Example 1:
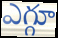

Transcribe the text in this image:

ఎగ్గూ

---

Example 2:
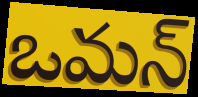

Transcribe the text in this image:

ఒమన్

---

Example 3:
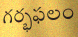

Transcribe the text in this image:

గర్భఫలం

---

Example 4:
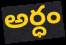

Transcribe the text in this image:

అర్ధం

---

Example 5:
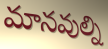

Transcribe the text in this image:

మానవుల్ని